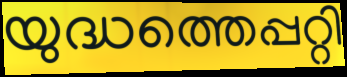
യുദ്ധത്തെപ്പറ്റി